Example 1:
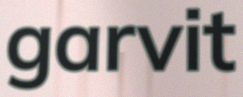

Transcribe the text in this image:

garvit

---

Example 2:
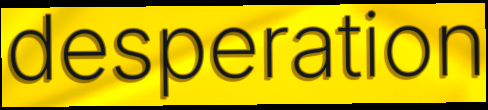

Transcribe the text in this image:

desperation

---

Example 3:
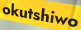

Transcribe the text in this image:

okutshiwo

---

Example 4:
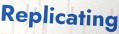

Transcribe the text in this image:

Replicating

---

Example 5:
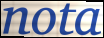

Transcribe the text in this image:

nota